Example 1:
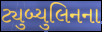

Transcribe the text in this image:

ટ્યુબ્યુલિનના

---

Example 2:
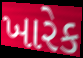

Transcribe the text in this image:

ખારેક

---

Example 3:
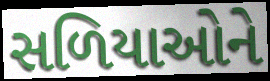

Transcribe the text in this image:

સળિયાઓને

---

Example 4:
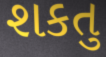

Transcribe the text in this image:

શકતુ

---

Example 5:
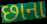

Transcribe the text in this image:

છાના